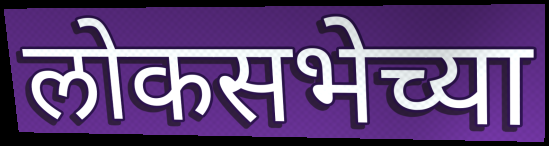
लोकसभेच्या